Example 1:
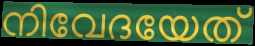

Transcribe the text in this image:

നിവേദയേത്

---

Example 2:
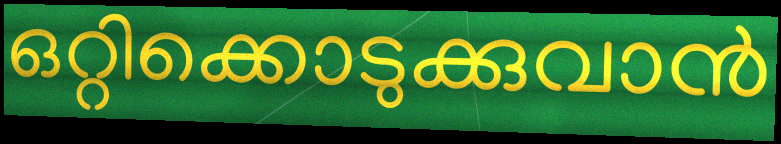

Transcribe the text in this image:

ഒറ്റിക്കൊടുക്കുവാൻ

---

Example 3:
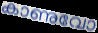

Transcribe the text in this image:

കാണുവോ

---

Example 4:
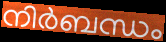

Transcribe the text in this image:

നിർബന്ധം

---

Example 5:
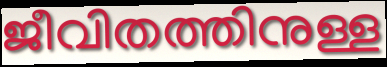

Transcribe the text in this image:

ജീവിതത്തിനുള്ള